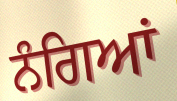
ਨੰਗਿਆਂ